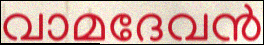
വാമദേവൻ